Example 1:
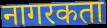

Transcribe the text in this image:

नागरकता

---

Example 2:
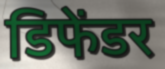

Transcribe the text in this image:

डिफेंडर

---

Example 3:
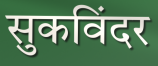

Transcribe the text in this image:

सुकविंदर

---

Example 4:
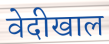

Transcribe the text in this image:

वेदीखाल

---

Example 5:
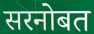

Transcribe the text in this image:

सरनोबत